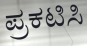
ಪ್ರಕಟಿಸಿ